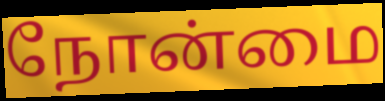
நோன்மை